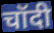
चॉदी